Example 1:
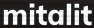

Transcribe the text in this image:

mitalit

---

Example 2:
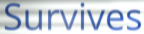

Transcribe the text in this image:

Survives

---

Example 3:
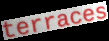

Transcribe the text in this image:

terraces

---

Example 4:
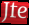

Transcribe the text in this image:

Jte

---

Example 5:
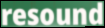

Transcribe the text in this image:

resound